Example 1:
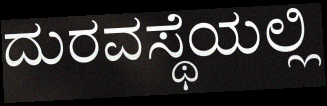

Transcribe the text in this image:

ದುರವಸ್ಥೆಯಲ್ಲಿ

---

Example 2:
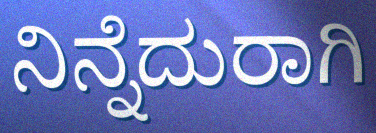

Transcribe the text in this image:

ನಿನ್ನೆದುರಾಗಿ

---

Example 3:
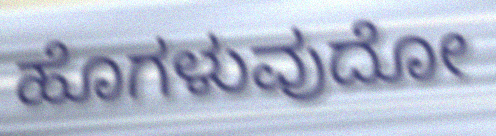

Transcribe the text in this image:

ಹೊಗಳುವುದೋ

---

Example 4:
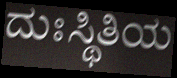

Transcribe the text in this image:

ದುಃಸ್ಥಿತಿಯ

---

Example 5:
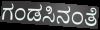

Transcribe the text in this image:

ಗಂಡಸಿನಂತೆ